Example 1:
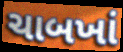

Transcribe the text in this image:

ચાબખાં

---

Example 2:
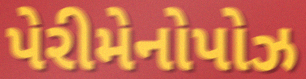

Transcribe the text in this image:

પેરીમેનોપોઝ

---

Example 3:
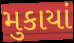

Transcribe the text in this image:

મુકાયાં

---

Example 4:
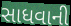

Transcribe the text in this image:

સાધવાની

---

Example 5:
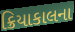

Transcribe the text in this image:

ક્રિયાકાલના